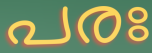
പരഃ